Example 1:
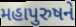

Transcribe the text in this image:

મહાપુરુષને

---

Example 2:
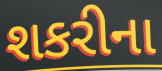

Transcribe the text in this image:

શકરીના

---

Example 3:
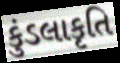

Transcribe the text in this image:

કુંડલાકૃતિ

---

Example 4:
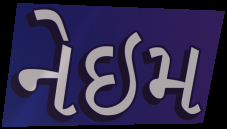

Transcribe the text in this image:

નેઇમ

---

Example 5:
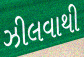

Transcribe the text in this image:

ઝીલવાથી